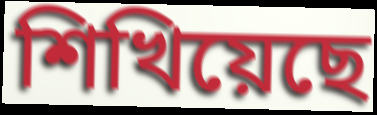
শিখিয়েছে